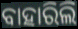
ବାହାରିଲି